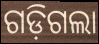
ଗଡ଼ିଗଲା